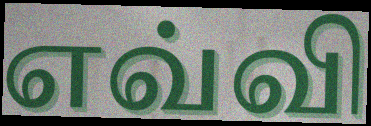
எவ்வி